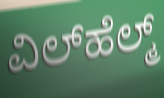
ವಿಲ್‌ಹೆಲ್ಮ್